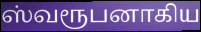
ஸ்வரூபனாகிய